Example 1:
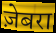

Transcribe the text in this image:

ज़ेबरा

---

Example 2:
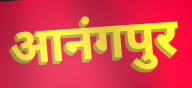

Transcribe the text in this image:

आनंगपुर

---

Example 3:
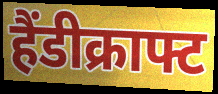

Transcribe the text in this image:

हैंडीक्राफ्ट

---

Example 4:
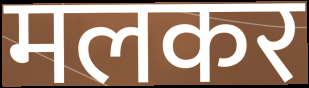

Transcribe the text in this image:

मलकर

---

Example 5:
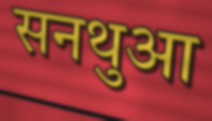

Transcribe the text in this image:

सनथुआ